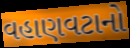
વહાણવટાનો